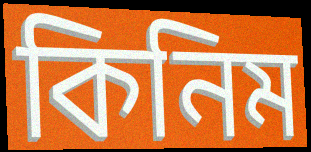
কিনিম